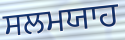
ਸਲਮਯਾਹ